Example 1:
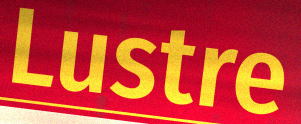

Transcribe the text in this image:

Lustre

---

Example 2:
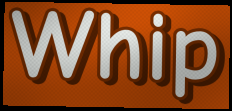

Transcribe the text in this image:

Whip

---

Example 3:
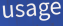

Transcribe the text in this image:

usage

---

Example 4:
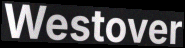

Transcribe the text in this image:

Westover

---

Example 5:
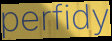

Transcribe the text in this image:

perfidy